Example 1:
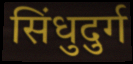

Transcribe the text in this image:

सिंधुदुर्ग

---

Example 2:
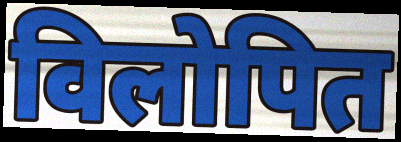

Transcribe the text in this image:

विलोपित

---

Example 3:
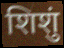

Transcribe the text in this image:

शिशुं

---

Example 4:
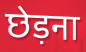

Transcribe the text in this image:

छेड़ना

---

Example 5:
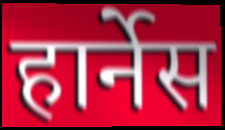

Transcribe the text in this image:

हार्नेस